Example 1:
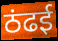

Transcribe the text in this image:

ठंढई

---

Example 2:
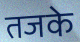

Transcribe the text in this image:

तजके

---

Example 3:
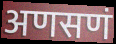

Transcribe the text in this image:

अणसणं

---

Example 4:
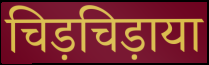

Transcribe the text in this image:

चिड़चिड़ाया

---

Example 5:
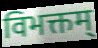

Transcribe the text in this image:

विभक्तम्